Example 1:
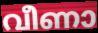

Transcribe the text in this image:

വീണാ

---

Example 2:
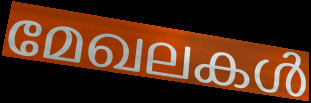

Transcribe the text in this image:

മേഖലകൾ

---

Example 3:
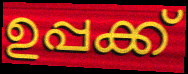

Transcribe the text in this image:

ഉപ്പക്ക്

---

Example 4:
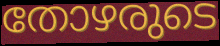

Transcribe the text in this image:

തോഴരുടെ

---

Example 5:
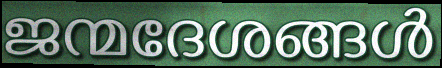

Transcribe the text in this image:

ജന്മദേശങ്ങൾ